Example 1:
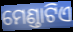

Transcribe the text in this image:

ମେଣ୍ଡାଟିଏ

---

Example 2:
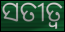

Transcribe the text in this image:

ସତୀତ୍ଵ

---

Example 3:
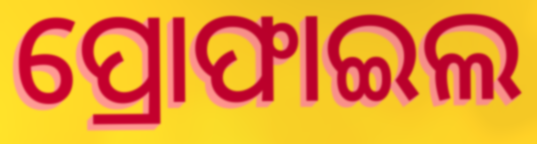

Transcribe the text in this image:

ପ୍ରୋଫାଇଲ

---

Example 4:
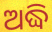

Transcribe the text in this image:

ଅଦ୍ଧି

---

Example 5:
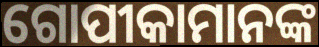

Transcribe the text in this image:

ଗୋପୀକାମାନଙ୍କ